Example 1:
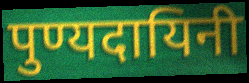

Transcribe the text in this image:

पुण्यदायिनी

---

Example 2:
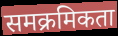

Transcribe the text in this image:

समक्रमिकता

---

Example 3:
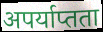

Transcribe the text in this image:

अपर्याप्तता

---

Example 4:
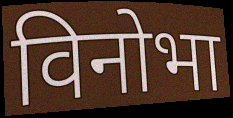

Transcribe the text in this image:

विनोभा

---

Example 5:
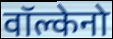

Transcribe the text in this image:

वॉल्केनो